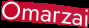
Omarzai